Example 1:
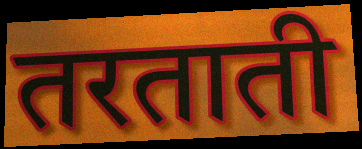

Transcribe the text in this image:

तरताती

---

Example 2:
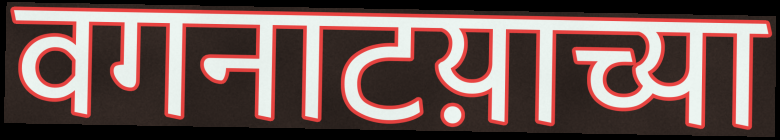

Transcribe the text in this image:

वगनाटय़ाच्या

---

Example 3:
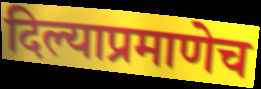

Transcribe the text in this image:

दिल्याप्रमाणेच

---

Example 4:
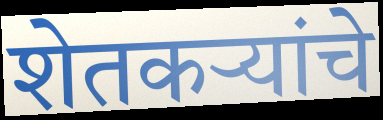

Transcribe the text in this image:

शेतकर्‍यांचे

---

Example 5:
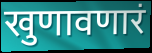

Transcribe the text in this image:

खुणावणारं